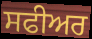
ਸਫੀਅਰ